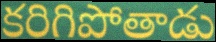
కరిగిపోతాడు